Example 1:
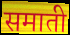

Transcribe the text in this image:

समाती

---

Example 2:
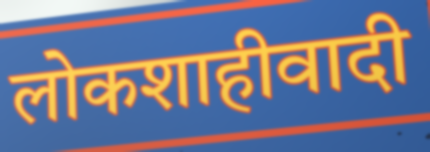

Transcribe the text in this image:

लोकशाहीवादी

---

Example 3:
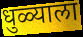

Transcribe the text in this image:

धुळ्याला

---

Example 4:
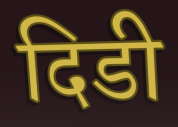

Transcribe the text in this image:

दिडी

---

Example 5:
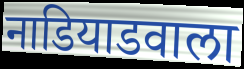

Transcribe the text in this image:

नाडियाडवाला